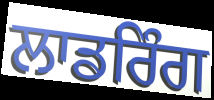
ਲਾਡਰਿੰਗ